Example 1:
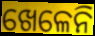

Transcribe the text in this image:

ଖେଳେନି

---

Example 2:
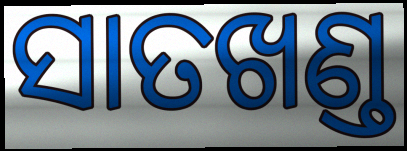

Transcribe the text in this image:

ସାତଖଣ୍ଡ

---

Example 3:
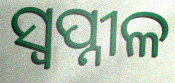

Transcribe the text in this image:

ସ୍ୱପ୍ନୀଳ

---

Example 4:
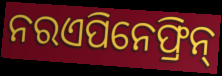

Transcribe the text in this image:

ନରଏପିନେଫ୍ରିନ୍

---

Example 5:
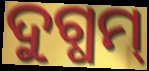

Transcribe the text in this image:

ଦୁଗ୍ଧମ୍